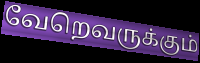
வேறெவருக்கும்